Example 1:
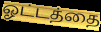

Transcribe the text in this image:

ஓட்டத்தை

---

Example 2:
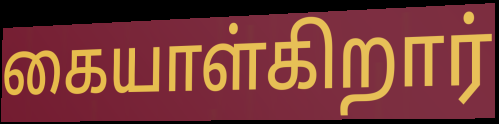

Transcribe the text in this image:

கையாள்கிறார்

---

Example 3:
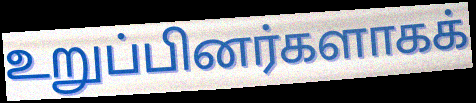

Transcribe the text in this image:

உறுப்பினர்களாகக்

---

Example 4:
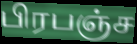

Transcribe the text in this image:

பிரபஞ்ச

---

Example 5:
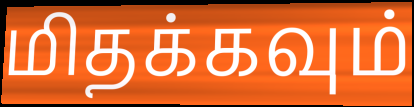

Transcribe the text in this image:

மிதக்கவும்